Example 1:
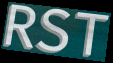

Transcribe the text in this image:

RST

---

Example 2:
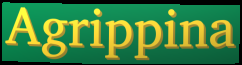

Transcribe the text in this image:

Agrippina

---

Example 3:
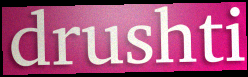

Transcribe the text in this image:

drushti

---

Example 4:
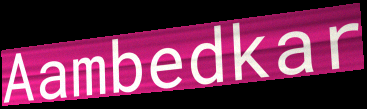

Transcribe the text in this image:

Aambedkar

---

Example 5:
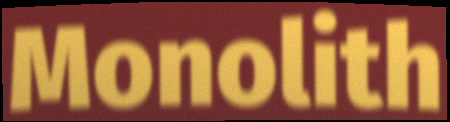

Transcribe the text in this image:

Monolith